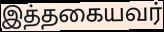
இத்தகையவர்